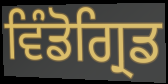
ਵਿੰਡੋਗ੍ਰਿਡ